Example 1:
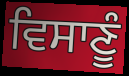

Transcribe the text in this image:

ਵਿਸਾਣੂੰ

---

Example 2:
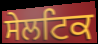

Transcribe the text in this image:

ਸੇਲਟਿਕ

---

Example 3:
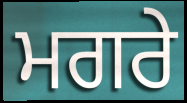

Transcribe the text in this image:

ਮਗਰੇ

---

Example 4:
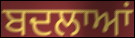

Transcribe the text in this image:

ਬਦਲਾਆਂ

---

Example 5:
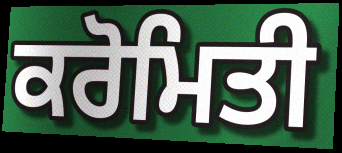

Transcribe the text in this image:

ਕਰੋਮਿਤੀ